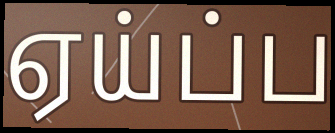
ஏய்ப்ப